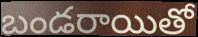
బండరాయితో